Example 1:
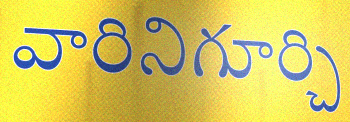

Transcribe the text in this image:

వారినిగూర్చి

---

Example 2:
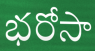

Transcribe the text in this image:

భరోసా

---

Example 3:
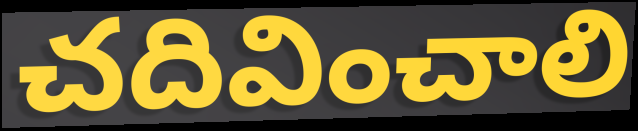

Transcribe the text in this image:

చదివించాలి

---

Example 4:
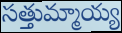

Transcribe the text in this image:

సత్తుమ్మాయ్య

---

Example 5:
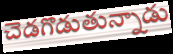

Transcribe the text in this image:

చెడగొడుతున్నాడు